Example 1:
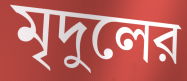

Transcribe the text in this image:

মৃদুলের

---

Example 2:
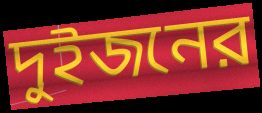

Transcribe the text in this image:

দুইজনের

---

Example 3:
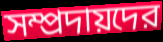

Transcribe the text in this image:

সম্প্রদায়দের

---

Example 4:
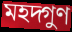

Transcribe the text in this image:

মহদ্গুণ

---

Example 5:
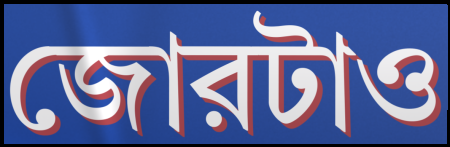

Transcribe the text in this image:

জোরটাও